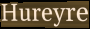
Hureyre